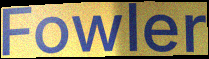
Fowler